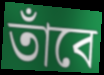
তাঁবে